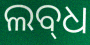
ଲବ୍‌ଧ